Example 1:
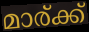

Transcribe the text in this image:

മാര്ക്ക്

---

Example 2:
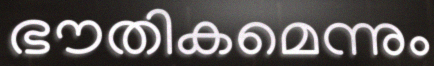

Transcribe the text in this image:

ഭൗതികമെന്നും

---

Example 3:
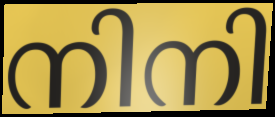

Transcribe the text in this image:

നിനി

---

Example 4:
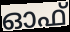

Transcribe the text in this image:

ഓഫ്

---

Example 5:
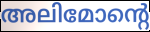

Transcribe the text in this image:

അലിമോന്റെ